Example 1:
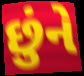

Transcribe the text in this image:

છુંને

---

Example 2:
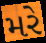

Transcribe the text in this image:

મરે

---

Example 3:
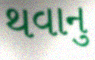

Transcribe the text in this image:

થવાનુ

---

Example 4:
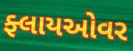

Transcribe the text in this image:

ફ્લાયઓવર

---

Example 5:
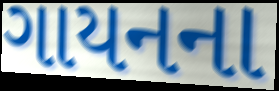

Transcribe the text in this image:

ગાયનના